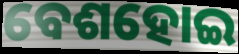
ବେଶହୋଇ